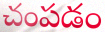
చంపడం